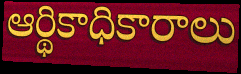
ఆర్థికాధికారాలు